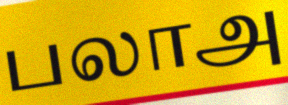
பலாஅ